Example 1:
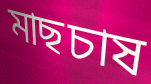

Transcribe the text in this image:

মাছচাষ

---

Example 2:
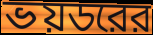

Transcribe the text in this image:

ভয়ডরের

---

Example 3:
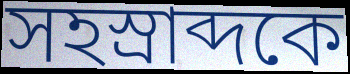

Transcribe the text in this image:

সহস্রাব্দকে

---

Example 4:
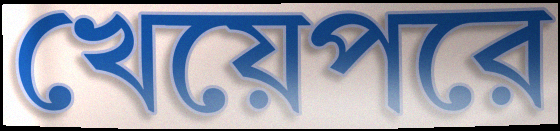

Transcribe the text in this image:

খেয়েপরে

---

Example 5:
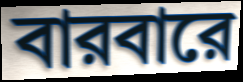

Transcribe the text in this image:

বারবারে